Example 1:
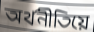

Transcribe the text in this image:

অৰ্থনীতিয়ে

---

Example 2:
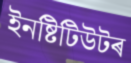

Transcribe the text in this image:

ইনষ্টিটিউটৰ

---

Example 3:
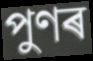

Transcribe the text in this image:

পুণৰ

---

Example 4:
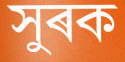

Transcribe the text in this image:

সুৰক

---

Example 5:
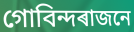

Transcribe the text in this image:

গোবিন্দৰাজনে